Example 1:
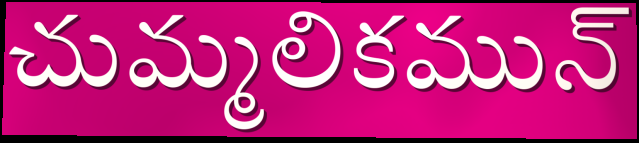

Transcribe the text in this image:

చుమ్మలికమున్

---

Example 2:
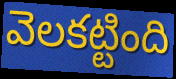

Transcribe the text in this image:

వెలకట్టింది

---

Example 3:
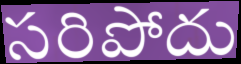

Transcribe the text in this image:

సరిపోదు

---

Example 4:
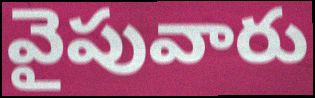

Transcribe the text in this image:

వైపువారు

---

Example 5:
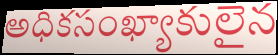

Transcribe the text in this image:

అధికసంఖ్యాకులైన